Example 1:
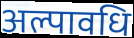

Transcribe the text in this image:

अल्पावधि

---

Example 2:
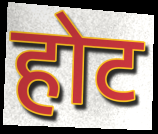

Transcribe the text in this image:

होट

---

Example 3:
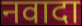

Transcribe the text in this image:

नवादा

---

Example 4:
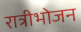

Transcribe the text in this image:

रात्रीभोजन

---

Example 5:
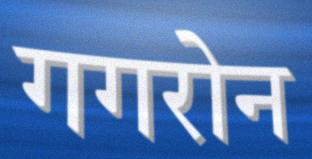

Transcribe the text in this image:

गगरोन